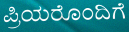
ಪ್ರಿಯರೊಂದಿಗೆ